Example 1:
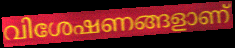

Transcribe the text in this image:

വിശേഷണങ്ങളാണ്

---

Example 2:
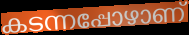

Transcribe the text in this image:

കടന്നപ്പോഴാണ്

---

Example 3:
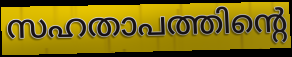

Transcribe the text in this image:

സഹതാപത്തിന്റെ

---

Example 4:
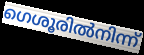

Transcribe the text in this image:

ഗെശൂരിൽനിന്ന്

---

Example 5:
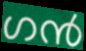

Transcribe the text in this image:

ഗൻ